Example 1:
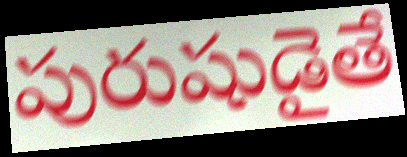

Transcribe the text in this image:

పురుషుడైతే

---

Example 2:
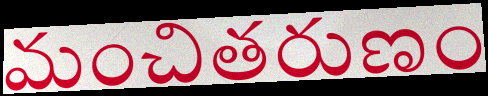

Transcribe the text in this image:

మంచితరుణం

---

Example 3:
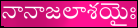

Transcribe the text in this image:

నానాజలాశయైః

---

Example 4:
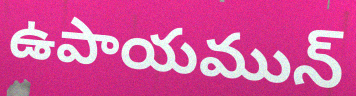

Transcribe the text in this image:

ఉపాయమున్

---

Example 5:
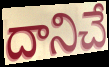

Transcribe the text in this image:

దానిచే